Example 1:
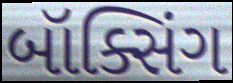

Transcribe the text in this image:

બૉક્સિંગ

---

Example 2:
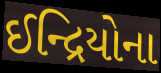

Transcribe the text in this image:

ઈન્દ્રિયોના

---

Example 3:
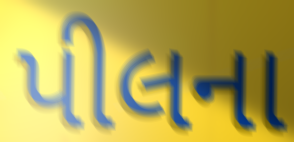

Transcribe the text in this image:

પીલના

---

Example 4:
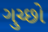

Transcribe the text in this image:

ગુચ્છો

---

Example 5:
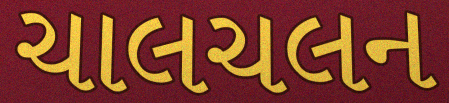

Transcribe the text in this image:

ચાલચલન